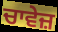
ਚਾਵੇਜ਼